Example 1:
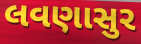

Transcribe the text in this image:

લવણાસુર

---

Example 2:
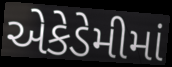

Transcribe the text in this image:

એકેડેમીમાં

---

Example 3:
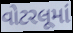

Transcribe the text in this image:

વોટરલૂમાં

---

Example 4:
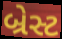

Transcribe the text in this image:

બ્રેસ્ટ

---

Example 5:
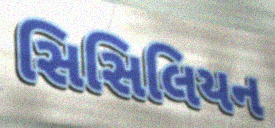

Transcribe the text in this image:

સિસિલિયન